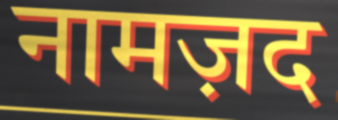
नामज़द